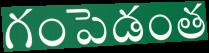
గంపెడంత